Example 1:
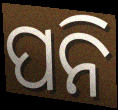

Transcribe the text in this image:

ପନି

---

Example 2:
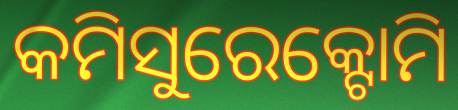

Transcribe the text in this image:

କମିସୁରେକ୍ଟୋମି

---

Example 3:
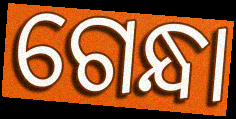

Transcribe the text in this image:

ଗେନ୍ଧା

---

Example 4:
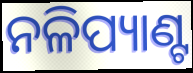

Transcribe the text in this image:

ନଳିପ୍ୟାଣ୍ଟ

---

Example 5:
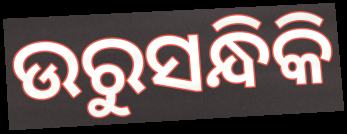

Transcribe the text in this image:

ଉରୁସନ୍ଧିକି